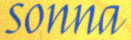
sonna